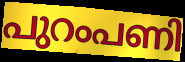
പുറംപണി